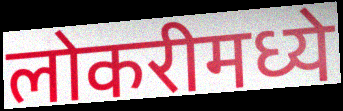
लोकरीमध्ये